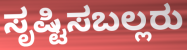
ಸೃಷ್ಟಿಸಬಲ್ಲರು